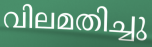
വിലമതിച്ചു